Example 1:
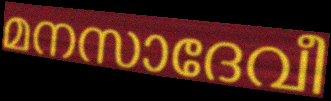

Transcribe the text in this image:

മനസാദേവീ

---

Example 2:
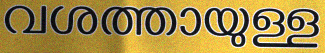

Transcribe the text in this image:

വശത്തായുള്ള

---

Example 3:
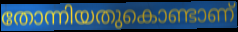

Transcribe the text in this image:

തോന്നിയതുകൊണ്ടാണ്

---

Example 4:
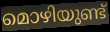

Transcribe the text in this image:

മൊഴിയുണ്ട്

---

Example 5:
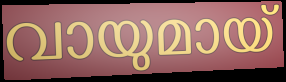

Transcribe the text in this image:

വായുമായ്